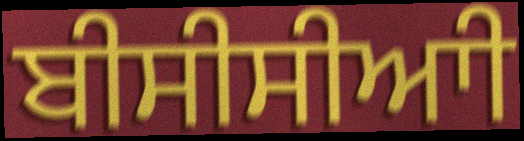
ਬੀਸੀਸੀਆੀ